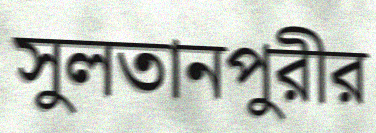
সুলতানপুরীর